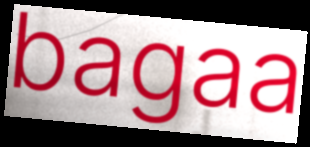
bagaa